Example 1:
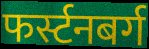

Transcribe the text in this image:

फर्स्टनबर्ग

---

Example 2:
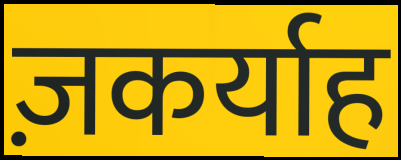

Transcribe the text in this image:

ज़कर्याह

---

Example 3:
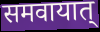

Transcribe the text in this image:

समवायात्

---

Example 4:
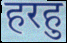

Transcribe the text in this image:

हरहु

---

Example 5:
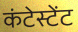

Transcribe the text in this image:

कंटेस्टेंट